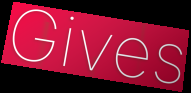
Gives